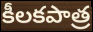
కీలకపాత్ర